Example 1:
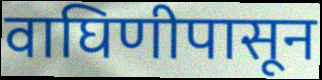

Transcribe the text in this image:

वाघिणीपासून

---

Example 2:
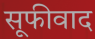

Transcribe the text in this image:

सूफीवाद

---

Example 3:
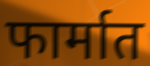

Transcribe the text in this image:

फार्मात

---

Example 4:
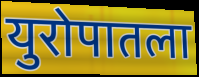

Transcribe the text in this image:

युरोपातला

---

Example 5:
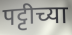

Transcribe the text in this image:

पट्टीच्या